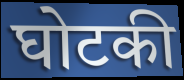
घोटकी